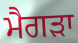
ਮੈਗੜਾ